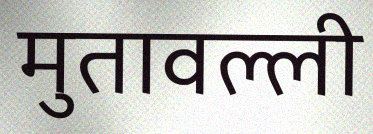
मुतावल्ली